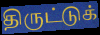
திருட்டுக்